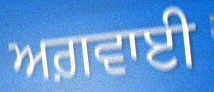
ਅਗ਼ਵਾਈ